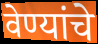
वेण्यांचे